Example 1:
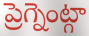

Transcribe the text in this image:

ప్రెగ్నెంట్గా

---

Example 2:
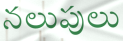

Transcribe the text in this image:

నలుపులు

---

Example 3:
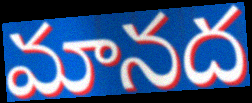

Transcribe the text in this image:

మానద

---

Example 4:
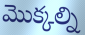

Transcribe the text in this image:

మొక్కల్ని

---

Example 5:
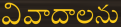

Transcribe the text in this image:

వివాదాలను